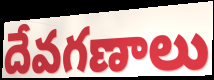
దేవగణాలు